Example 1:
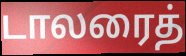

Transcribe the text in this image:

டாலரைத்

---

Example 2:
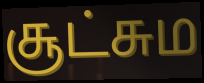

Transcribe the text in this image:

சூட்சும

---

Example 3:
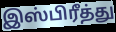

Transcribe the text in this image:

இஸ்பிரீத்து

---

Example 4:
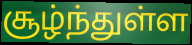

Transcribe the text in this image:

சூழ்ந்துள்ள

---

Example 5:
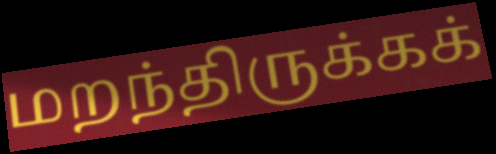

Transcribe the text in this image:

மறந்திருக்கக்